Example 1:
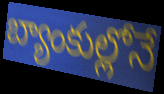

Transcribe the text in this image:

బ్యాంకుల్లోనే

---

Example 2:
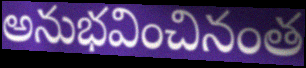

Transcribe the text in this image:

అనుభవించినంత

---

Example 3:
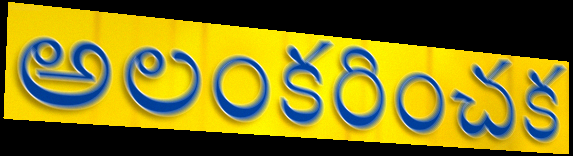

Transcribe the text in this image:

అలంకరించక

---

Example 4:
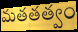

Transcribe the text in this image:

మతతత్వం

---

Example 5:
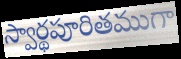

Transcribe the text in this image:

స్వార్థపూరితముగా